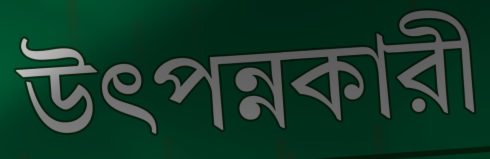
উৎপন্নকারী